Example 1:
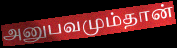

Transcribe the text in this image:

அனுபவமும்தான்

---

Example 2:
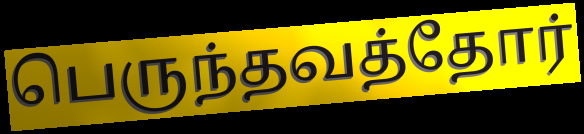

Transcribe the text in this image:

பெருந்தவத்தோர்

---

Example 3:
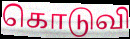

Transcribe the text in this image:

கொடுவி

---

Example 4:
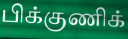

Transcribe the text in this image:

பிக்குணிக்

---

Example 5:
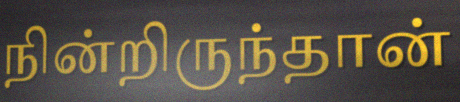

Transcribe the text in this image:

நின்றிருந்தான்